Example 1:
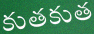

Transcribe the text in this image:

కుతకుత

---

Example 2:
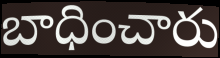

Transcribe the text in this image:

బాధించారు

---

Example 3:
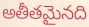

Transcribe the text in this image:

అతీతమైనది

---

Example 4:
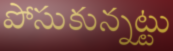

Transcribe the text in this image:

పోసుకున్నట్టు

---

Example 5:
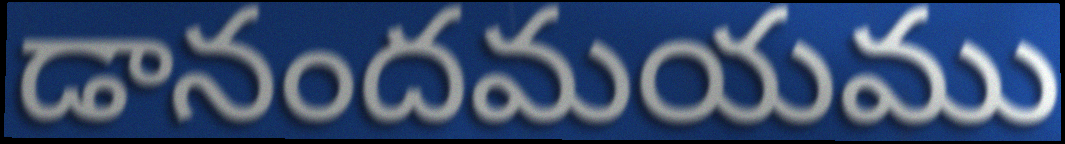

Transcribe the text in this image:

డానందమయము